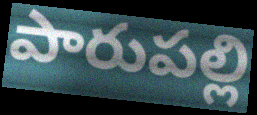
పారుపల్లి